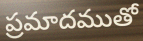
ప్రమాదముతో